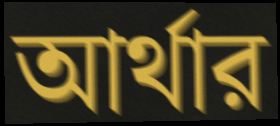
আর্থার